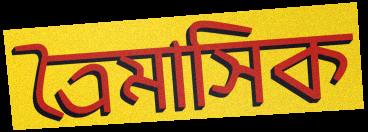
ত্রৈমাসিক